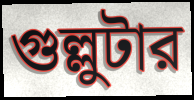
গুল্লুটার